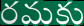
రమకు